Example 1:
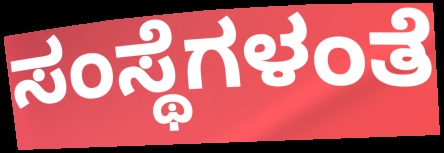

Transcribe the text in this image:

ಸಂಸ್ಥೆಗಳಂತೆ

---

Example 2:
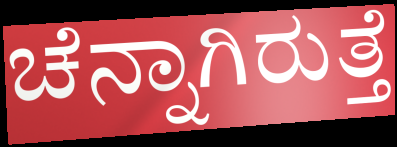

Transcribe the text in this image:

ಚೆನ್ನಾಗಿರುತ್ತೆ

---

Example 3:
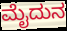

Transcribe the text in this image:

ಮೈದುನ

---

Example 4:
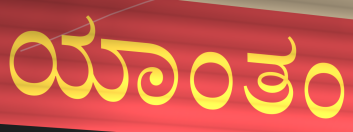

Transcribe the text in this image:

ಯಾಂತಂ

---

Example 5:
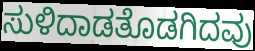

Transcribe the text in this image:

ಸುಳಿದಾಡತೊಡಗಿದವು